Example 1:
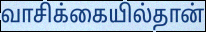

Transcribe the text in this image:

வாசிக்கையில்தான்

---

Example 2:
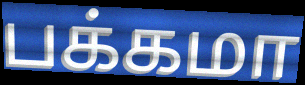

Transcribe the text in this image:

பக்கமா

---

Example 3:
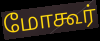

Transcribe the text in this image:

மோகூர்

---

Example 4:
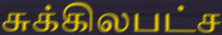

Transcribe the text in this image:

சுக்கிலபட்ச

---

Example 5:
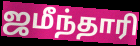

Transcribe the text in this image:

ஜமீந்தாரி